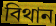
বিথান